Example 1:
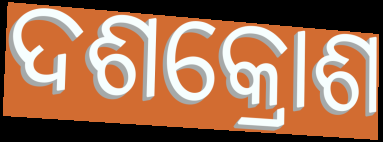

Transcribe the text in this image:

ଦଶକ୍ରୋଶ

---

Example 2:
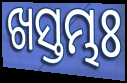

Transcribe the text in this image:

ଖସ୍ତମ୍ଭଃ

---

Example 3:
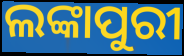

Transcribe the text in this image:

ଲଙ୍କାପୁରୀ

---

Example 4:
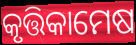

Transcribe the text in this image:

କୃତ୍ତିକାମେଷ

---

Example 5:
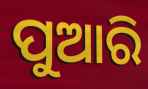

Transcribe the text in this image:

ପୁଆରି